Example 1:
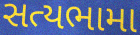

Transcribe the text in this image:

સત્યભામા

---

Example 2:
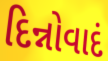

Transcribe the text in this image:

દિન્નોવાદં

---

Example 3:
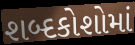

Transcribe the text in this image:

શબ્દકોશોમાં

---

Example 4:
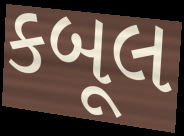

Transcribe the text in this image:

કબૂલ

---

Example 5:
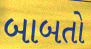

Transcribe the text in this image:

બાબતો